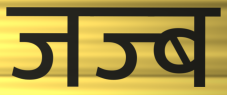
जज्ब